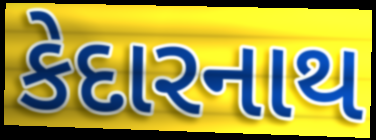
કેદારનાથ